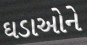
ઘડાઓને